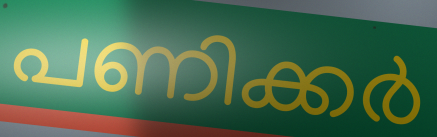
പണിക്കർ